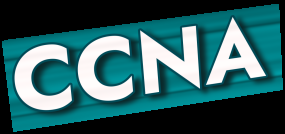
CCNA